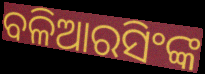
ବଳିଆରସିଂଙ୍କ